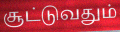
சூட்டுவதும்